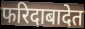
फरिदाबादेत